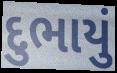
દુભાયું